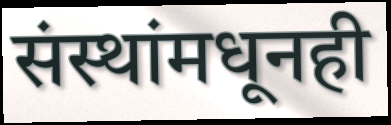
संस्थांमधूनही